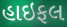
હાઇફલ